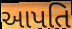
આપતિ